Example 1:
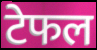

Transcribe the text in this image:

टेफल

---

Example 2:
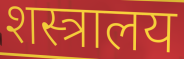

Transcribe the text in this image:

शस्त्रालय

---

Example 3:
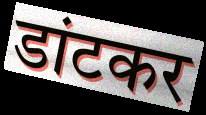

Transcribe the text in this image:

डांटकर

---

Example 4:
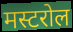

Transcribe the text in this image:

मस्टरोल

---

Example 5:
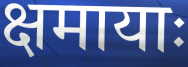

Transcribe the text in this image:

क्षमायाः